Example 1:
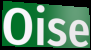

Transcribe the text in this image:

Oise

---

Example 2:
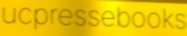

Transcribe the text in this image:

ucpressebooks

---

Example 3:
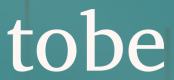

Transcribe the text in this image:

tobe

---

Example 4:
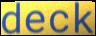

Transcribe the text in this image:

deck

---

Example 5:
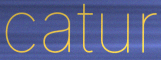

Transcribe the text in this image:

catur